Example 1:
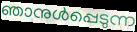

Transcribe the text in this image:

ഞാനുൾപ്പെടുന്ന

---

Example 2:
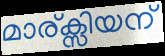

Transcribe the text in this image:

മാര്ക്സിയന്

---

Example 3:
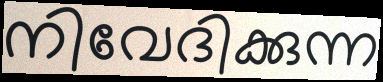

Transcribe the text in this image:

നിവേദിക്കുന്ന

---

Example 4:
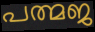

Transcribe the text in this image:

പത്മജ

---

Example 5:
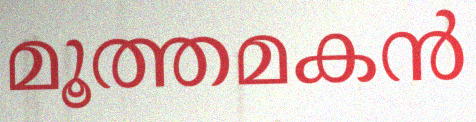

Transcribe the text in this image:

മൂത്തമകൻ